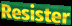
Resister